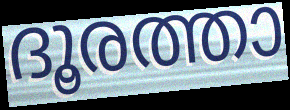
ദൂരത്താ